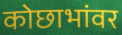
कोछाभांवर